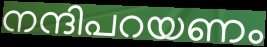
നന്ദിപറയണം